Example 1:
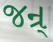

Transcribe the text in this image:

જન્ર્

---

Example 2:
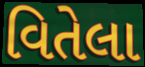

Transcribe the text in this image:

વિતેલા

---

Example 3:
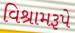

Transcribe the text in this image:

વિશ્રામરૂપે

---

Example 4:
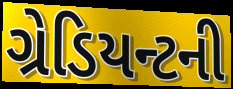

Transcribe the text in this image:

ગ્રેડિયન્ટની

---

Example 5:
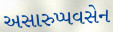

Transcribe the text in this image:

અસારુપ્પવસેન